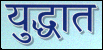
युद्धात